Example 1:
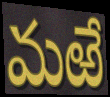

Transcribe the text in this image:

మఱే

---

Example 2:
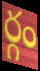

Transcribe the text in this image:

ర్గం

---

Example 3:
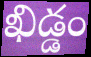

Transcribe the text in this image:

ఖిడ్డం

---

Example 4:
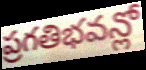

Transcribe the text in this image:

ప్రగతిభవన్లో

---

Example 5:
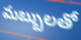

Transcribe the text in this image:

మబ్బులతో